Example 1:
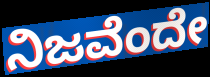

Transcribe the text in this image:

ನಿಜವೆಂದೇ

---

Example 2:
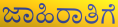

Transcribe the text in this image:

ಜಾಹಿರಾತಿಗೆ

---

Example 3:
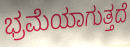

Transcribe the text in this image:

ಭ್ರಮೆಯಾಗುತ್ತದೆ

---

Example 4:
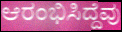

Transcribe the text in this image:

ಆರಂಭಿಸಿದ್ದೆವು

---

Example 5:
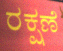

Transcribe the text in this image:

ರಕ್ಷಣೆ